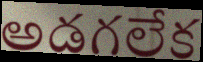
అడగలేక